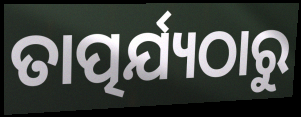
ତାତ୍ପର୍ଯ୍ୟଠାରୁ